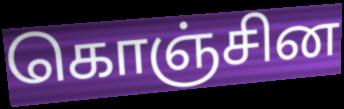
கொஞ்சின